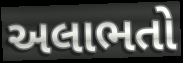
અલાભતો